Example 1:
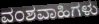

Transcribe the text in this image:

ವಂಶವಾಹಿಗಳು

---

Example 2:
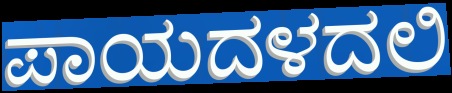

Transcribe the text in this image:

ಪಾಯದಳದಲಿ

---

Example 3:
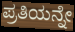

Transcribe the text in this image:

ಪ್ರತಿಯನ್ನೇ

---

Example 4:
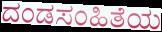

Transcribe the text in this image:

ದಂಡಸಂಹಿತೆಯ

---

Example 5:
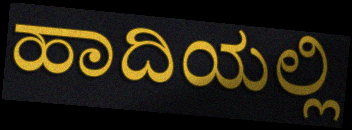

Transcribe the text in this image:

ಹಾದಿಯಲ್ಲಿ